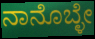
ನಾನೊಬ್ಳೇ